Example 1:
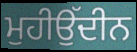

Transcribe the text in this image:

ਮੁਹੀਉੱਦੀਨ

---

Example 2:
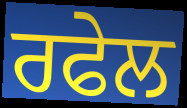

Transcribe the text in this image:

ਰਫੇਲ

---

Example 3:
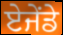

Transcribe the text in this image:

ਏਜੇਂਡੇ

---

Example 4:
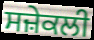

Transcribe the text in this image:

ਸਜ਼ੇਕਲੀ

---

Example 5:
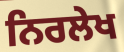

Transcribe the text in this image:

ਨਿਰਲੇਖ